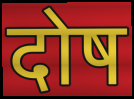
दोष